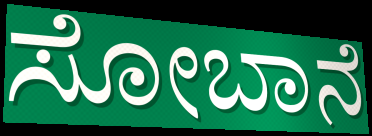
ಸೋಬಾನೆ